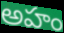
అహం